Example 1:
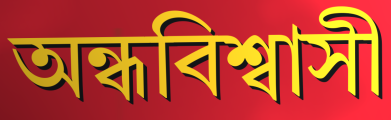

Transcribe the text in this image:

অন্ধবিশ্বাসী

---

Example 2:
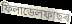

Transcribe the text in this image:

ফিলাডেলফাছৰ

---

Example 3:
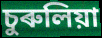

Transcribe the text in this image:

চুৰুলিয়া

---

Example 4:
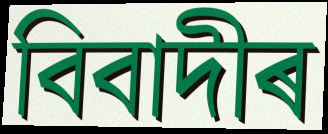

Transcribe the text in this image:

বিবাদীৰ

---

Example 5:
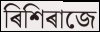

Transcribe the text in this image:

ৰিশিৰাজে